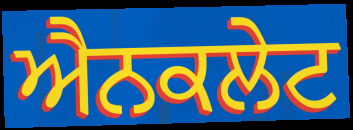
ਐਨਕਲੇਟ